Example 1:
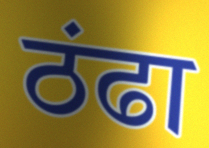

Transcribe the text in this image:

ठंढा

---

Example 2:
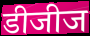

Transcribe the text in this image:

डीजीज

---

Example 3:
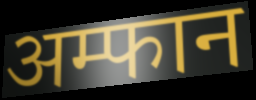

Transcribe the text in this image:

अम्फान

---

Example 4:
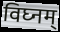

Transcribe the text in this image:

विघ्नम्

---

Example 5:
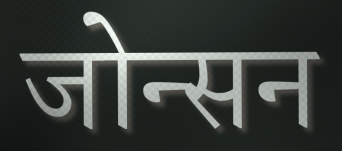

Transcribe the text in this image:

जोन्सन